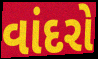
વાંદરો